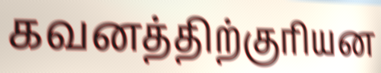
கவனத்திற்குரியன